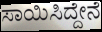
ಸಾಯಿಸಿದ್ದೇನೆ